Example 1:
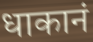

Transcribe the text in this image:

धाकानं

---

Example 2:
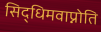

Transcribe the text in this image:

सिद्धिमवाप्नोति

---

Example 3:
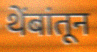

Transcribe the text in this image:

थेंबांतून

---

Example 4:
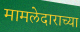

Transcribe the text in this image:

मामलेदाराच्या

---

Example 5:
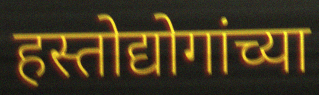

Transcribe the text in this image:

हस्तोद्योगांच्या